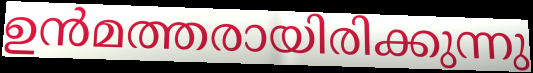
ഉൻമത്തരായിരിക്കുന്നു